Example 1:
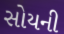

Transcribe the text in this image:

સોયની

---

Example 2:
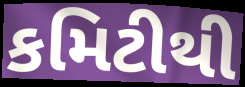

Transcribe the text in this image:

કમિટીથી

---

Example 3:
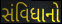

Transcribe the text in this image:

સંવિધાનો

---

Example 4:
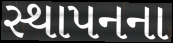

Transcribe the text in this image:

સ્થાપનના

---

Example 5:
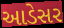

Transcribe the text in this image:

આડેસર